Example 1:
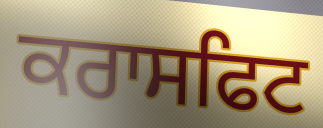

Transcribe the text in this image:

ਕਰਾਸਫਿਟ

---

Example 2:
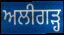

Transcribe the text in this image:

ਅਲੀਗੜ੍ਹ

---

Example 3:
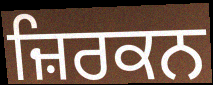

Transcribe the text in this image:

ਜ਼ਿਰਕਨ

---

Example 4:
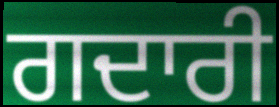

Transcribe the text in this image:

ਗਦਾਰੀ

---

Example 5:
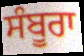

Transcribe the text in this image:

ਸੰਬੂਰਾ